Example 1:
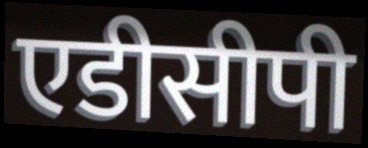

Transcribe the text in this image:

एडीसीपी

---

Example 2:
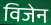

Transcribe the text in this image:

विजेन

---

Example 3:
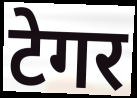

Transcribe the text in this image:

टेगर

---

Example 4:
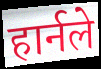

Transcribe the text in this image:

हार्नले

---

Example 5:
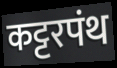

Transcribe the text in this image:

कट्टरपंथ